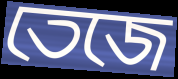
তেজে